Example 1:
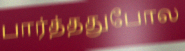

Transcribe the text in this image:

பார்த்ததுபோல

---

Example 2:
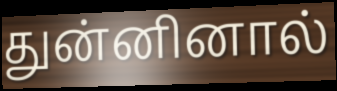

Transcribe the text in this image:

துன்னினால்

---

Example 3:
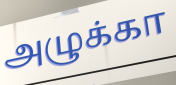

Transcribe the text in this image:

அழுக்கா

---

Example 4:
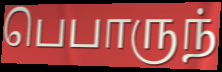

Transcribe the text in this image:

பெபாருந்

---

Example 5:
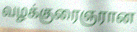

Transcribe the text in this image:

வழக்குரைஞரான